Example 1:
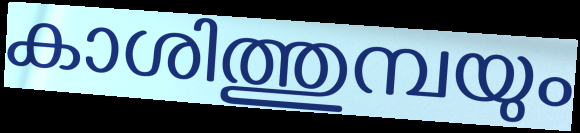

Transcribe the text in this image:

കാശിത്തുമ്പയും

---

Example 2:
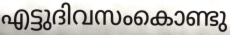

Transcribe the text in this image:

എട്ടുദിവസംകൊണ്ടു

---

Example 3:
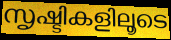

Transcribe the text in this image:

സൃഷ്ടികളിലൂടെ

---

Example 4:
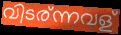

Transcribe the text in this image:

വിടര്ന്നവള്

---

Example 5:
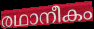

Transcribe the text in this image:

രഥാനീകം